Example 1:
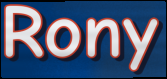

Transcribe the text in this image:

Rony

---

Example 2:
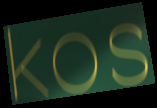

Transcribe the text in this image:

kos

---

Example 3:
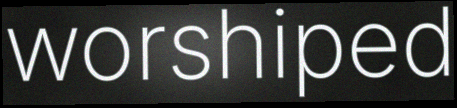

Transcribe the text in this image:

worshiped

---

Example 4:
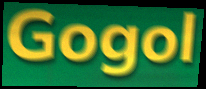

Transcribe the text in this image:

Gogol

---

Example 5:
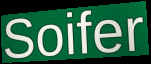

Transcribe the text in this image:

Soifer